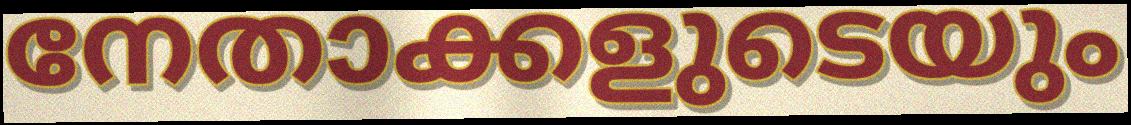
നേതാക്കളുടെയും